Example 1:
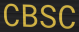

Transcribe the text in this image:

CBSC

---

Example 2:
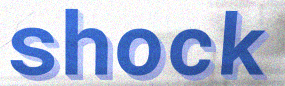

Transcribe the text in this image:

shock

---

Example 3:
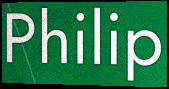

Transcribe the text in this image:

Philip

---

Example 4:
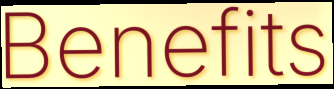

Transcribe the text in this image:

Benefits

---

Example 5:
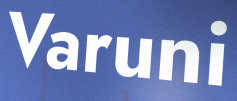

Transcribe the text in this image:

Varuni